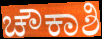
ಚೌಕಾಶಿ